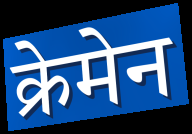
क्रेमेन